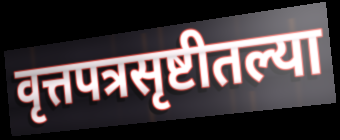
वृत्तपत्रसृष्टीतल्या